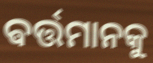
ଵର୍ତ୍ତମାନକୁ